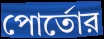
পোর্তোর